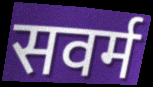
सवर्म